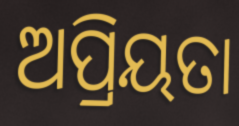
ଅପ୍ରିୟତା